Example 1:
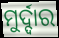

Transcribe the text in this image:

ମୁର୍ଦ୍ଦାର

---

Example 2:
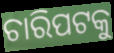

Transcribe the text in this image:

ଚାରିପଟକୁ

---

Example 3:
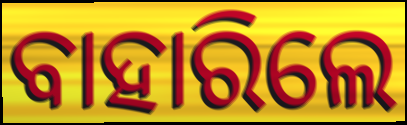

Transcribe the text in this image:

ବାହାରିଲେ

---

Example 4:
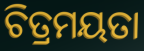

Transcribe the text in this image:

ଚିତ୍ରମୟତା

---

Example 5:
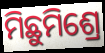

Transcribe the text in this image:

ମିଛୁମିଶ୍ରେ